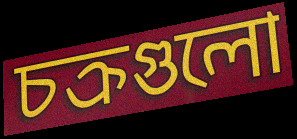
চক্রগুলো